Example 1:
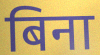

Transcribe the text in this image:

बिना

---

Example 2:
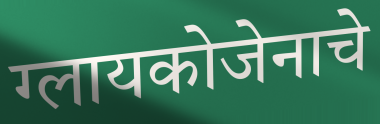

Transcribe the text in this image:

ग्लायकोजेनाचे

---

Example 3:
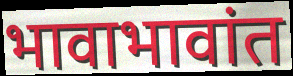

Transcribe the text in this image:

भावाभावांत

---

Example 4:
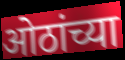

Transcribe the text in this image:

ओठांच्या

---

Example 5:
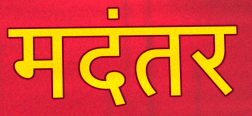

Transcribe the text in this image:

मदंतर